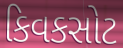
કિવકસોટ